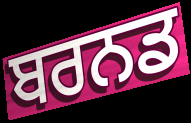
ਬਰਨਡ